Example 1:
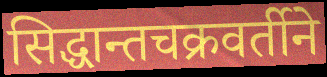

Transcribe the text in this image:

सिद्धान्तचक्रवर्तीने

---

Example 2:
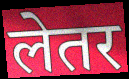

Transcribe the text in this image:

लेतर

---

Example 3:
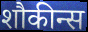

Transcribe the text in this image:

शौकीन्स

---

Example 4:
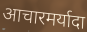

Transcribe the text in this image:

आचारमर्यादा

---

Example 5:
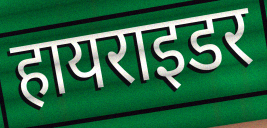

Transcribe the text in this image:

हायराइडर